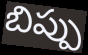
బిప్పు